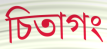
চিতাগং